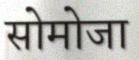
सोमोजा